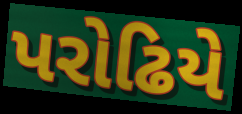
પરોઢિયે